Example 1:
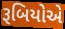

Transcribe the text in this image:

રૂબિયોએ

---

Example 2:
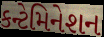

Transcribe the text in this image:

કન્ટેમિનેશન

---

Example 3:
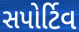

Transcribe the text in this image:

સપોર્ટિવ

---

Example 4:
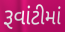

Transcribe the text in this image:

રૂવાંટીમાં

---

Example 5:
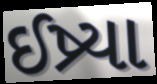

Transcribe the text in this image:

ઈષ્ર્યા